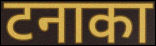
टनाका